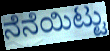
ನೆನೆಯಿಟ್ಟು